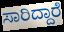
ಸಾರಿದ್ದಾರೆ